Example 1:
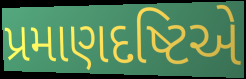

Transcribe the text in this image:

પ્રમાણદષ્ટિએ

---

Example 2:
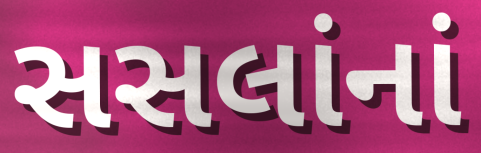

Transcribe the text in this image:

સસલાંનાં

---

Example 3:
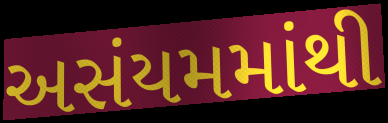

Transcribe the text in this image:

અસંયમમાંથી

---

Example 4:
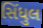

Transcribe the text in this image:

સિંધુલ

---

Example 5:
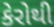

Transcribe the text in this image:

કેરોથી